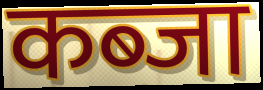
कब्‍जा